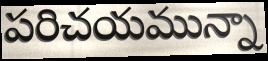
పరిచయమున్నా